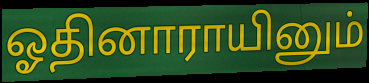
ஓதினாராயினும்